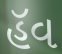
હૅવ